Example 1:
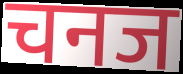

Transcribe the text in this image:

चनज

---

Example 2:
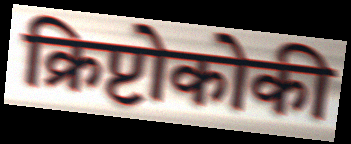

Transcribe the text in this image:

क्रिप्टोकोकी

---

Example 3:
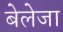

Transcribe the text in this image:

बेलेजा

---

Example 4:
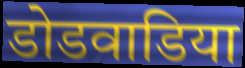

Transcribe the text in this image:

डोडवाडिया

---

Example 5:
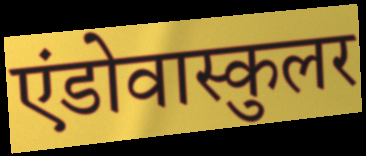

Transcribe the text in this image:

एंडोवास्कुलर